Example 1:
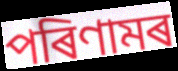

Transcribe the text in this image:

পৰিণামৰ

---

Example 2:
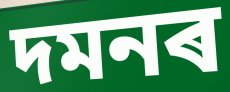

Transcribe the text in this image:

দমনৰ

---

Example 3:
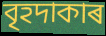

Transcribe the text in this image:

বৃহদাকাৰ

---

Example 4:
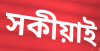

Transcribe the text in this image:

সকীয়াই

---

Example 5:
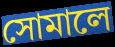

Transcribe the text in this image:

সোমালে